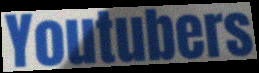
Youtubers